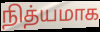
நித்யமாக